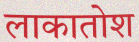
लाकातोश